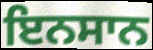
ਇਨਸਾਨ